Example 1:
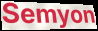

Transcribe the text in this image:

Semyon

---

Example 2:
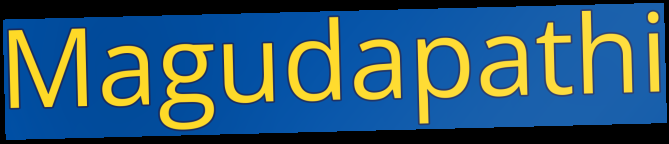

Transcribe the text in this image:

Magudapathi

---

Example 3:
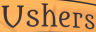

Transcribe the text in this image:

Ushers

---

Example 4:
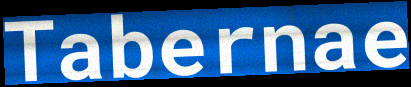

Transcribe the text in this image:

Tabernae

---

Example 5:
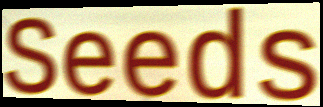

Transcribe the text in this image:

Seeds